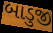
બાડુજી